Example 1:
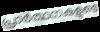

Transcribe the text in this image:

പ്രാർത്ഥനകളുടെ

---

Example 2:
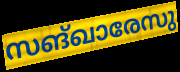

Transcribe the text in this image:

സങ്ഖാരേസു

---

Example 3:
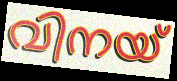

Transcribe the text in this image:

വിനയ്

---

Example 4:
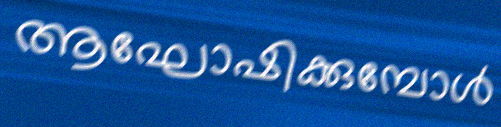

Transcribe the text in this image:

ആഘോഷിക്കുമ്പോൾ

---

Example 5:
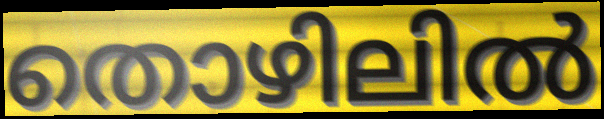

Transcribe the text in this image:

തൊഴിലിൽ